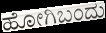
ಹೋಗಿಬಂದು